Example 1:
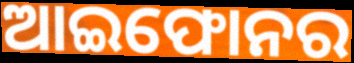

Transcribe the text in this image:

ଆଇଫୋନର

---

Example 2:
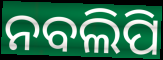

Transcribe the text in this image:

ନବଲିପି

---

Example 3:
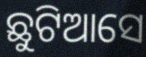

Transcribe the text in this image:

ଛୁଟିଆସେ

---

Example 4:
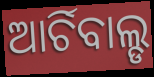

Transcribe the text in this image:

ଆର୍ଚିବାଲ୍ଡ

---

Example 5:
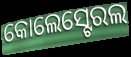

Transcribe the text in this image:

କୋଲେସ୍ଟେରଲ